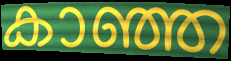
കാഞ്ഞ